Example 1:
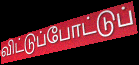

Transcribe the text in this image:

விட்டுப்போட்டுப்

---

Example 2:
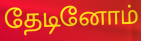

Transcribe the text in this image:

தேடினோம்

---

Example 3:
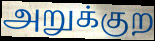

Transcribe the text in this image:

அறுக்குற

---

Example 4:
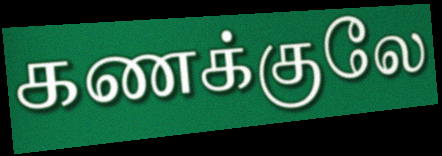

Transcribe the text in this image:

கணக்குலே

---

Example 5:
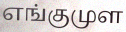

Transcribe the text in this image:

எங்குமுள